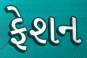
ફેશન